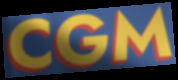
CGM